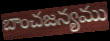
బాంచజన్యము